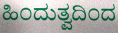
ಹಿಂದುತ್ವದಿಂದ